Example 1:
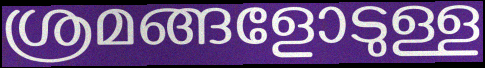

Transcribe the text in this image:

ശ്രമങ്ങളോടുള്ള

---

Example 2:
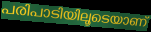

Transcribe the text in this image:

പരിപാടിയിലൂടെയാണ്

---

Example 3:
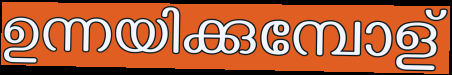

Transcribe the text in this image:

ഉന്നയിക്കുമ്പോള്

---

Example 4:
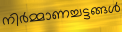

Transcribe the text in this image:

നിർമ്മാണച്ചട്ടങ്ങൾ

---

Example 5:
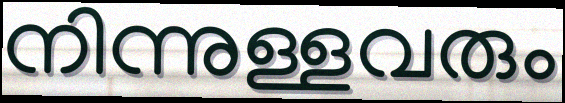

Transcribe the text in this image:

നിന്നുള്ളവരും